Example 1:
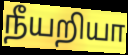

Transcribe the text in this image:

நீயறியா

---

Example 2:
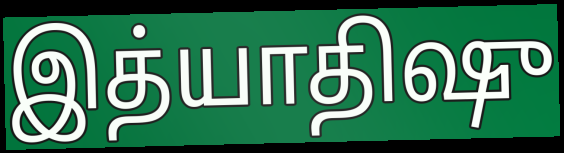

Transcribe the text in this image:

இத்யாதிஷு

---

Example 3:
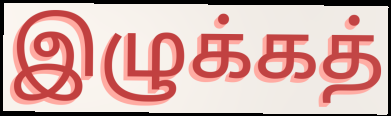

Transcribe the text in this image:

இழுக்கத்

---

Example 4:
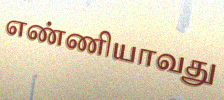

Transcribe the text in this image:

எண்ணியாவது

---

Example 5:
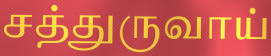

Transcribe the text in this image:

சத்துருவாய்